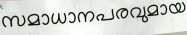
സമാധാനപരവുമായ